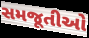
સમજૂતીઓ